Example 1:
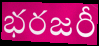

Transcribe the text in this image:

భరజరీ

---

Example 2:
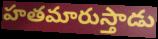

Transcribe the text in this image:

హతమారుస్తాడు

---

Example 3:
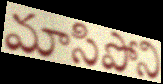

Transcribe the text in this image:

మాసిపోని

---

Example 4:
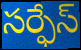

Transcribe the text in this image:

సర్ఫేస్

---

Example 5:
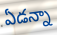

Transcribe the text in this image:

ఏడన్నా